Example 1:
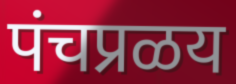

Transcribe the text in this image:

पंचप्रळय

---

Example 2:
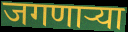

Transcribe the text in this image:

जगणाऱ्या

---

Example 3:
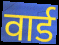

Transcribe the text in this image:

वार्ड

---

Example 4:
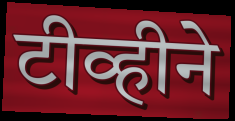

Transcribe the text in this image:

टीव्हीने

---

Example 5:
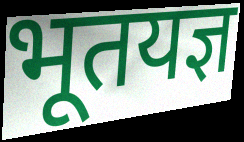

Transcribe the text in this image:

भूतयज्ञ